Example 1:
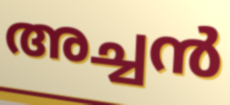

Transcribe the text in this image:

അച്ചൻ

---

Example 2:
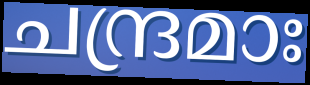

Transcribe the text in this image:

ചന്ദ്രമാഃ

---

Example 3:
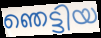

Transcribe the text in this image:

ഞെട്ടിയ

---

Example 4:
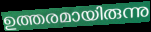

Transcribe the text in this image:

ഉത്തരമായിരുന്നു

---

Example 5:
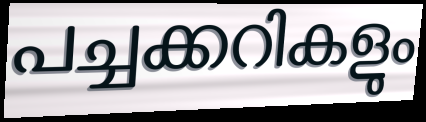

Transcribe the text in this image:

പച്ചക്കറികളും